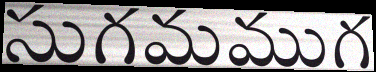
సుగమముగ